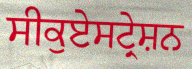
ਸੀਕੁਏਸਟ੍ਰੇਸ਼ਨ